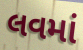
લવમાં